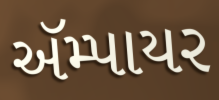
ઍમ્પાયર